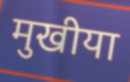
मुखीया